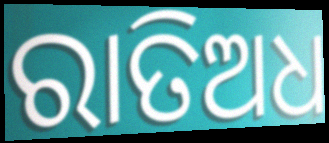
ରାତିଅଧ